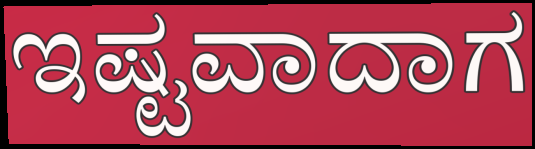
ಇಷ್ಟವಾದಾಗ